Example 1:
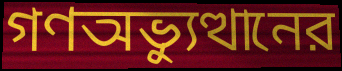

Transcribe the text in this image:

গণঅভ্যুত্থানের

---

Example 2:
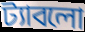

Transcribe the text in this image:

ট্যাবলো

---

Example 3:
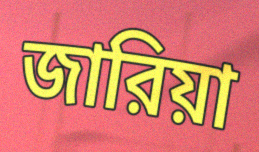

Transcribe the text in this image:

জারিয়া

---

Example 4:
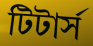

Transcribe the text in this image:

টিটার্স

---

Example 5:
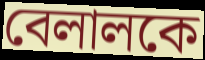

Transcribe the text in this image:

বেলালকে